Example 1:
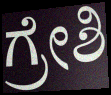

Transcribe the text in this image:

ಗ್ರೇಶಿ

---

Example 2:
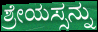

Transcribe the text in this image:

ಶ್ರೇಯಸ್ಸನ್ನು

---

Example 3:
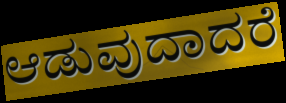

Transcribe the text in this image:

ಆಡುವುದಾದರೆ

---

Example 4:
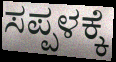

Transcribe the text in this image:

ಸಪ್ಪಳಕ್ಕೆ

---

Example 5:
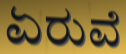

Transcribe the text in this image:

ಏರುವೆ